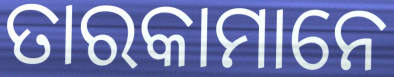
ତାରକାମାନେ